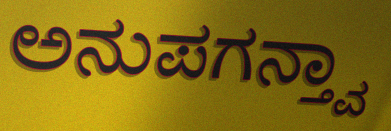
ಅನುಪಗನ್ತ್ವಾ